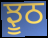
ਝੂਠ